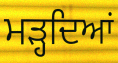
ਮੜ੍ਹਦਿਆਂ